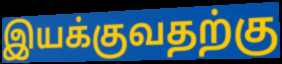
இயக்குவதற்கு